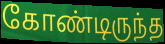
கோண்டிருந்த